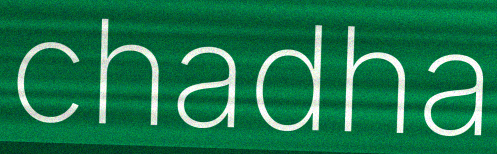
chadha